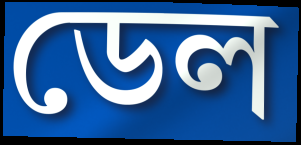
ডেল